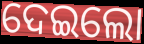
ଦେଇଲୋ